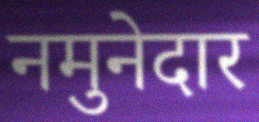
नमुनेदार